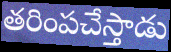
తరింపచేస్తాడు